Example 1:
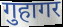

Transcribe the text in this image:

गुहागर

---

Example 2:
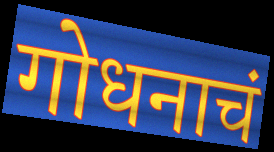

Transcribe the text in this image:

गोधनाचं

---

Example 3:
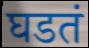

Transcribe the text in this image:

घडतं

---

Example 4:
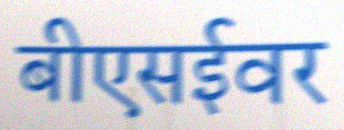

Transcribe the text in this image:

बीएसईवर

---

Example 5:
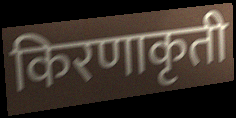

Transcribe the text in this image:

किरणाकृती